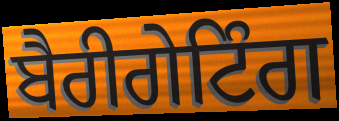
ਬੈਰੀਗੇਟਿੰਗ